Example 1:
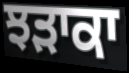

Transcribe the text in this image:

ਝੜਾਕਾ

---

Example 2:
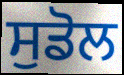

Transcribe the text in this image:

ਸੁਡੋਲ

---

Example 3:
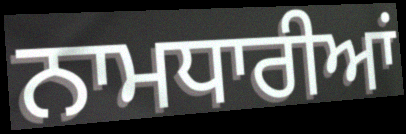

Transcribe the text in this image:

ਨਾਮਧਾਰੀਆਂ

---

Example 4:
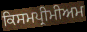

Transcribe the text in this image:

ਕਿਸਮਪ੍ਰੀਮੀਅਮ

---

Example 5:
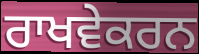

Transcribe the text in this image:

ਰਾਖਵੇਕਰਨ